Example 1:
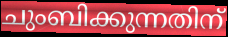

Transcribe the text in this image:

ചുംബിക്കുന്നതിന്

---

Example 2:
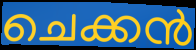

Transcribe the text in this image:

ചെക്കൻ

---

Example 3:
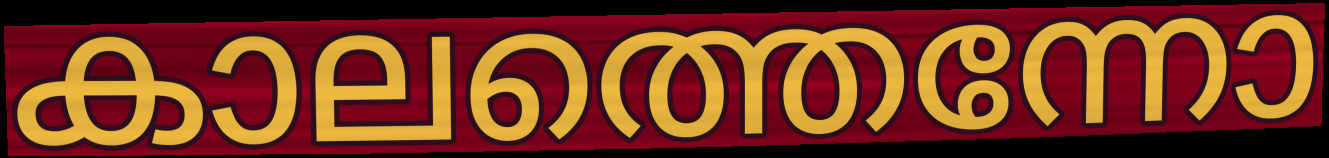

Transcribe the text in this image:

കാലത്തെന്നോ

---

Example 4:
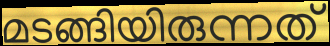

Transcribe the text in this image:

മടങ്ങിയിരുന്നത്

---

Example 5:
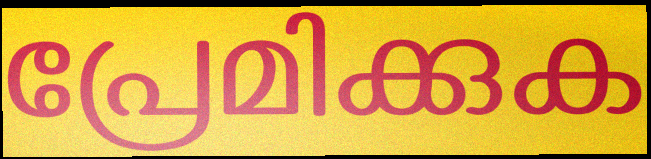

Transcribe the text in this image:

പ്രേമിക്കുക